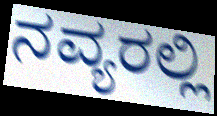
ನವ್ಯರಲ್ಲಿ